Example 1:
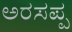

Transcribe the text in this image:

ಅರಸಪ್ಪ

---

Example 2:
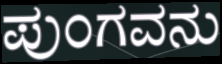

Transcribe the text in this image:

ಪುಂಗವನು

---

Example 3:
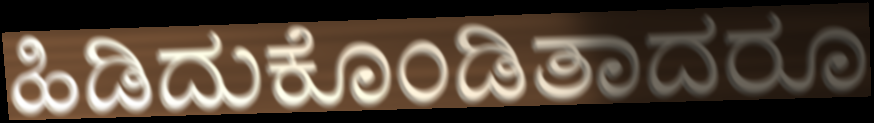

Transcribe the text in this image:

ಹಿಡಿದುಕೊಂಡಿತಾದರೂ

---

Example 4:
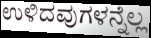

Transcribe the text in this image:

ಉಳಿದವುಗಳನ್ನೆಲ್ಲ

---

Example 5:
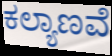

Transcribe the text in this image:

ಕಲ್ಯಾಣವೆ